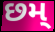
છમ્